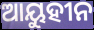
ଆୟୁହୀନ